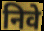
निवे